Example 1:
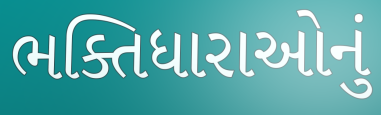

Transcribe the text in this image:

ભક્તિધારાઓનું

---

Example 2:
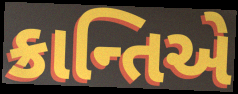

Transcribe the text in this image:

ક્રાન્તિએ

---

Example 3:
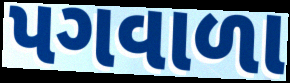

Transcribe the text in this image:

પગવાળા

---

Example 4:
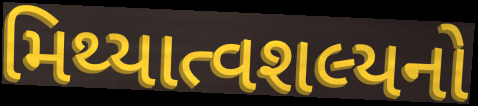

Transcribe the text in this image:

મિથ્યાત્વશલ્યનો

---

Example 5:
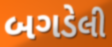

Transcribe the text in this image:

બગડેલી